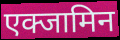
एक्जामिन